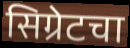
सिग्रेटचा